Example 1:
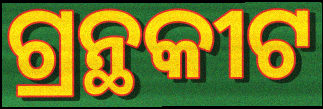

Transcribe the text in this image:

ଗ୍ରନ୍ଥକୀଟ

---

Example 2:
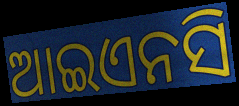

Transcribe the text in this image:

ଆଇଏନସି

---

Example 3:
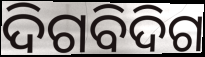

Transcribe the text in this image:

ଦିଗବିଦିଗ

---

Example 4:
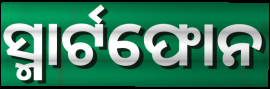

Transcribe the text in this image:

ସ୍ମାର୍ଟଫୋନ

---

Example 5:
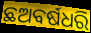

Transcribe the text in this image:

ଛଅବର୍ଷଧରି